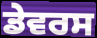
ਡੇਵਰਸ